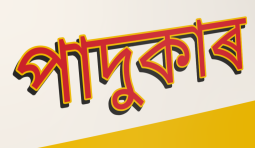
পাদুকাৰ